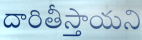
దారితీస్తాయని